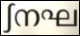
ഽനഘ